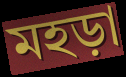
মহড়া